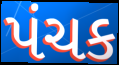
પંચક